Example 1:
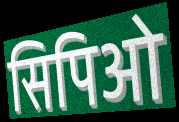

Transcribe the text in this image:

सिपिओ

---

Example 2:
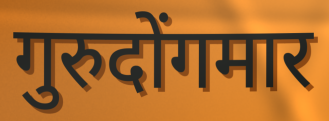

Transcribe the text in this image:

गुरुदोंगमार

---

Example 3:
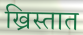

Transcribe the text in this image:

ख्रिस्तात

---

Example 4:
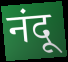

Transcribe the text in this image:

नंदू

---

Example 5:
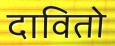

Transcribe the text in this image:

दावितो